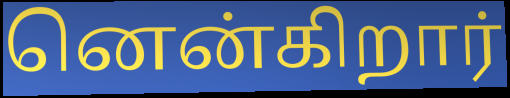
னென்கிறார்